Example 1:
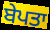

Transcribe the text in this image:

ਬੇਪਤਾ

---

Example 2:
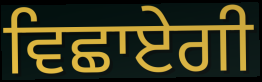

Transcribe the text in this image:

ਵਿਛਾਏਗੀ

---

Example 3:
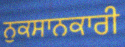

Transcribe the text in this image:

ਨੁਕਸਾਨਕਾਰੀ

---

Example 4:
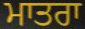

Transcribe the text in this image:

ਮਾਤਰਾ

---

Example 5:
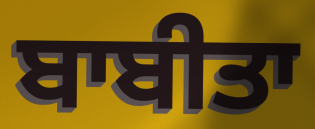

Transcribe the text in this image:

ਬਾਬੀਤਾ